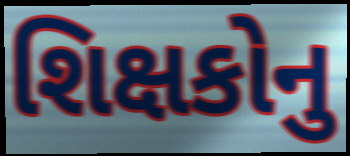
શિક્ષકોનુ